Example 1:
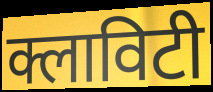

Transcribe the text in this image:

क्लाविटी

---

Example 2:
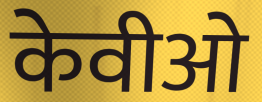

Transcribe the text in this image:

केवीओ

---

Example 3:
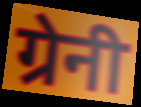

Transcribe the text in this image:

ग्रेनी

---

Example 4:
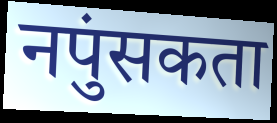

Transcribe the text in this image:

नपुंसकता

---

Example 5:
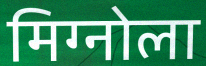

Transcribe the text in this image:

मिग्नोला